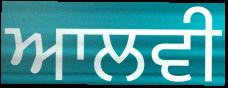
ਆਲਵੀ